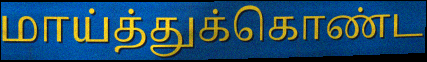
மாய்த்துக்கொண்ட